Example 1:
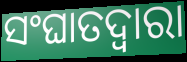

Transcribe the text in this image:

ସଂଘାତଦ୍ୱାରା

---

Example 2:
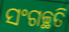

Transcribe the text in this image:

ସଂଗଚ୍ଛତି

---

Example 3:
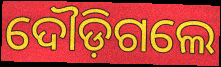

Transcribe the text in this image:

ଦୌଡ଼ିଗଲେ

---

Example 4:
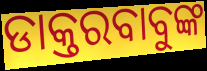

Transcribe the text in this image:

ଡାକ୍ତରବାବୁଙ୍କ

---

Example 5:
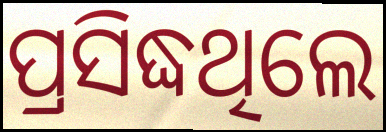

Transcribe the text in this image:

ପ୍ରସିଦ୍ଧଥିଲେ